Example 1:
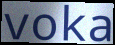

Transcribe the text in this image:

voka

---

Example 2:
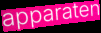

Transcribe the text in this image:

apparaten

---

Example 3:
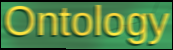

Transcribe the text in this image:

Ontology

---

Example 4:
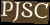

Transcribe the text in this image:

PJSC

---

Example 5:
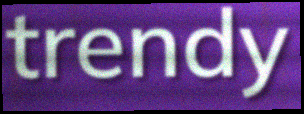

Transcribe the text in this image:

trendy